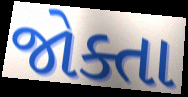
જોક્તા